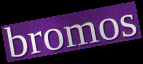
bromos